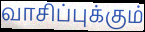
வாசிப்புக்கும்